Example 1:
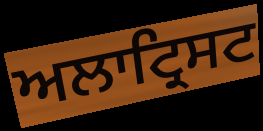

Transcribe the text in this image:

ਅਲਾਟ੍ਰਿਸਟ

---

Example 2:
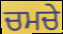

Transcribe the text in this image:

ਚਮਚੇ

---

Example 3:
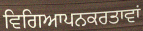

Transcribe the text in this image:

ਵਿਗਿਆਪਨਕਰਤਾਵਾਂ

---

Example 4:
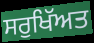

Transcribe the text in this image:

ਸਰੁਖਿੱਅਤ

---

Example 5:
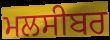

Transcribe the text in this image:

ਮਲਸੀਬਰ